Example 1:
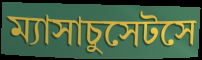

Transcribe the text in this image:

ম্যাসাচুসেটসে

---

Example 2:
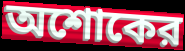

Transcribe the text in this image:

অশোকের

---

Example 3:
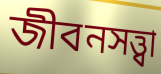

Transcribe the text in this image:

জীবনসত্ত্বা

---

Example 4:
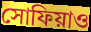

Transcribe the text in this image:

সোফিয়াও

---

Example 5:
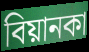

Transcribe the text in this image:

বিয়ানকা